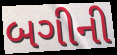
બગીની